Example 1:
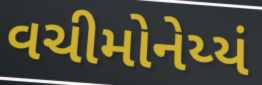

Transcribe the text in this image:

વચીમોનેય્યં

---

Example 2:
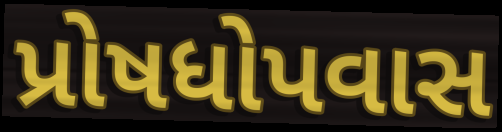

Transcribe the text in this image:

પ્રોષધોપવાસ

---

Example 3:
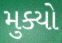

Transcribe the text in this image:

મુક્યો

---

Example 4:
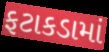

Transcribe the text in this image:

ફટાકડામાં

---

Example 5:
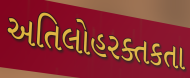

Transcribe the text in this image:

અતિલોહરક્તકતા